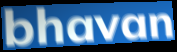
bhavan